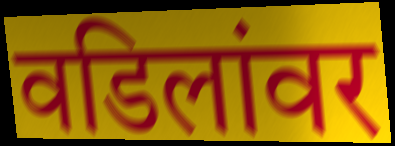
वडिलांवर